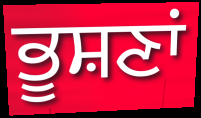
ਭੂਸ਼ਣਾਂ